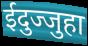
ईदुज्जुहा